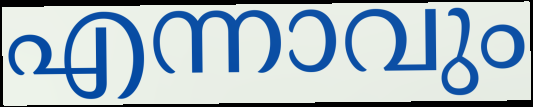
എന്നാവും